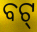
ବଟ୍